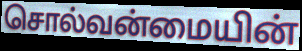
சொல்வன்மையின்